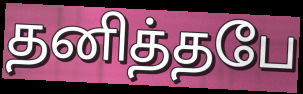
தனித்தபே